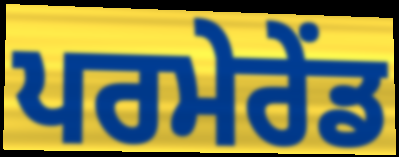
ਪਰਮੇਰੇਂਡ